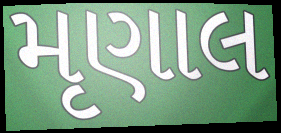
મૃણાલ